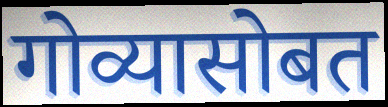
गोव्यासोबत